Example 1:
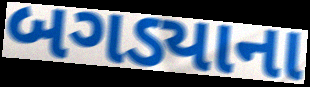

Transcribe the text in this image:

બગડ્યાના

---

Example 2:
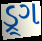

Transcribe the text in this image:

ડ્ર્ગ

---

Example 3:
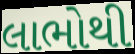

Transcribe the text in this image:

લાભોથી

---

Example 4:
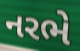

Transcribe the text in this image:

નરભે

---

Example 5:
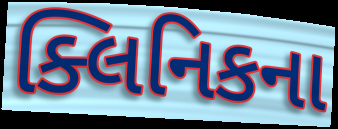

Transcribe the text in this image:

ક્લિનિકના